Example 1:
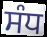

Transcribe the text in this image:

ਸੰਧ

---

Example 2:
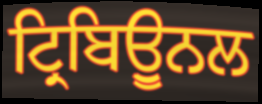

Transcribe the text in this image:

ਟ੍ਰਿਬਿਊੁਨਲ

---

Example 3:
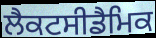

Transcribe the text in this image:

ਲੈਕਟਸੀਡੈਮਿਕ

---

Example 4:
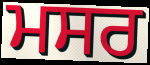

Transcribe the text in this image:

ਮਸਰ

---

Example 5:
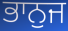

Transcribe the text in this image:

ਭਾਨੁਜ